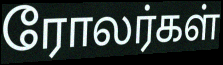
ரோலர்கள்